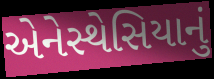
એનેસ્થેસિયાનું